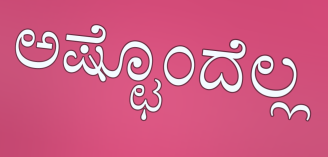
ಅಷ್ಟೊಂದೆಲ್ಲ